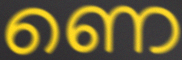
ണെ